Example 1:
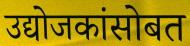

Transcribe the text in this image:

उद्योजकांसोबत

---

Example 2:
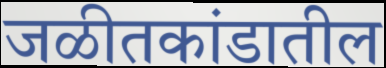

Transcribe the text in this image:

जळीतकांडातील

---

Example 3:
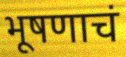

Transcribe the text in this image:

भूषणाचं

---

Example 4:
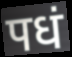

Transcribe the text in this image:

पधं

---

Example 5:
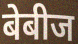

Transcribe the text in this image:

बेबीज